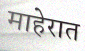
माहेरात